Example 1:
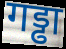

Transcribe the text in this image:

गड्ढा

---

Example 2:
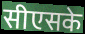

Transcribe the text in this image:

सीएसके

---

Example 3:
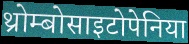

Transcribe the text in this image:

थ्रोम्बोसाइटोपेनिया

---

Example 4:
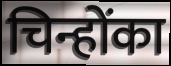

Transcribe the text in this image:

चिन्होंका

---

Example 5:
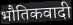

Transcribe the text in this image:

भौतिकवादी